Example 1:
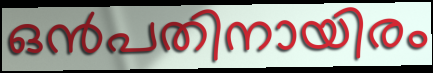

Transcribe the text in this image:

ഒൻപതിനായിരം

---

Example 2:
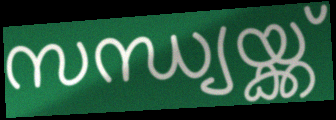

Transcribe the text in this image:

സന്ധ്യയ്ക്ക്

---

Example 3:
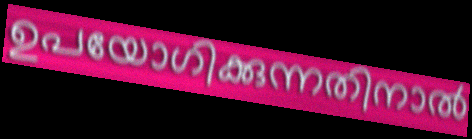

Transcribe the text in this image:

ഉപയോഗിക്കുന്നതിനാൽ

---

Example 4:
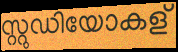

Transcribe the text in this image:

സ്റ്റുഡിയോകള്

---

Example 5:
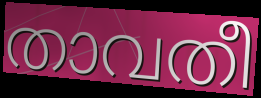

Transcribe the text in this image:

താവതീ